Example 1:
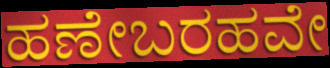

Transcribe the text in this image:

ಹಣೇಬರಹವೇ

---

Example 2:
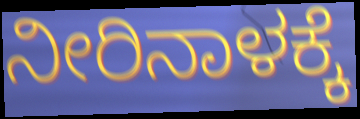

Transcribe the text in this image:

ನೀರಿನಾಳಕ್ಕೆ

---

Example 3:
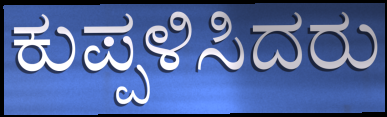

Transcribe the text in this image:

ಕುಪ್ಪಳಿಸಿದರು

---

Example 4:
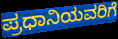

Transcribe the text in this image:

ಪ್ರಧಾನಿಯವರಿಗೆ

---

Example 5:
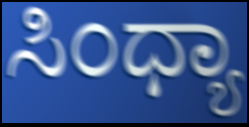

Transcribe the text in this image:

ಸಿಂಧ್ಯಾ